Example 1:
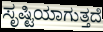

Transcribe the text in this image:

ಸೃಷ್ಟಿಯಾಗುತ್ತದೆ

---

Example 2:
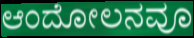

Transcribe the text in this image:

ಆಂದೋಲನವೂ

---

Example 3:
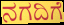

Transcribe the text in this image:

ನಗದಿಗೆ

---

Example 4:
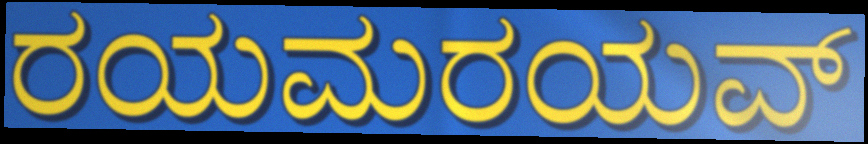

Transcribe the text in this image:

ರಯಮರಯವ್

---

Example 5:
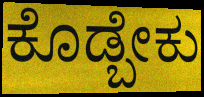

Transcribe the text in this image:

ಕೊಡ್ಬೇಕು